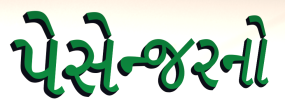
પેસેન્જરનો